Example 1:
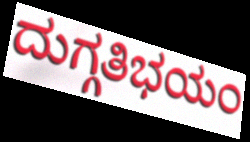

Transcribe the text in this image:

ದುಗ್ಗತಿಭಯಂ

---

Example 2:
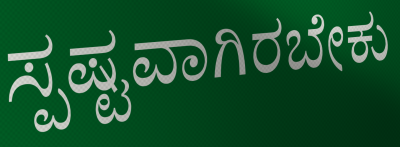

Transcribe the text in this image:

ಸ್ಪಷ್ಟವಾಗಿರಬೇಕು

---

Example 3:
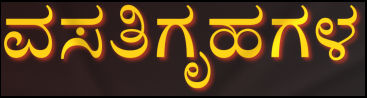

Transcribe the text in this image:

ವಸತಿಗೃಹಗಳ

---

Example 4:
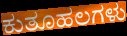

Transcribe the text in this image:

ಕುತೂಹಲಗಳು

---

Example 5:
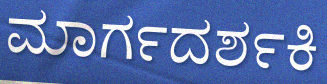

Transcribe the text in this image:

ಮಾರ್ಗದರ್ಶಕಿ